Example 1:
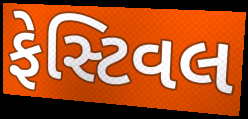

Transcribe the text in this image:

ફેસ્ટિવલ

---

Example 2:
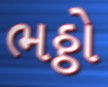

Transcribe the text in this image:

ભઠ્ઠો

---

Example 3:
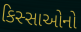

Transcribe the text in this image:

કિસ્સાઓનો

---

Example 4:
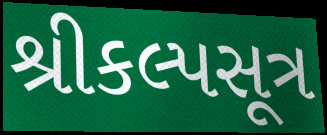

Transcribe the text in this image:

શ્રીકલ્પસૂત્ર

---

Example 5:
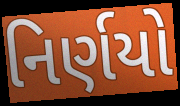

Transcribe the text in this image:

નિર્ણયો